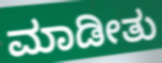
ಮಾಡೀತು